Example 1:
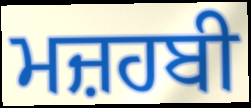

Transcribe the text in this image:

ਮਜ਼ਹਬੀ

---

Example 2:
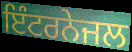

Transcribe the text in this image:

ਇੰਟਰਨੇਜਲ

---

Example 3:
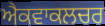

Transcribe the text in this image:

ਐਕਵਾਕਲਚਰ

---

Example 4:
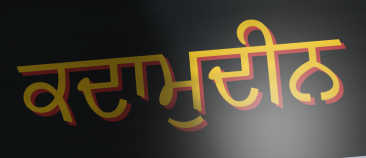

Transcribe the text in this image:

ਕਦਾਮੁਦੀਨ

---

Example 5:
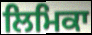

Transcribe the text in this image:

ਲਿਮਿਕਾ